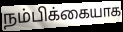
நம்பிக்கையாக